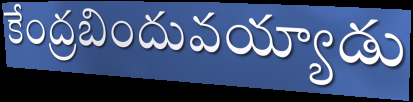
కేంద్రబిందువయ్యాడు